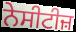
ਨੇਸੀਟੀਜ਼